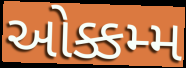
ઓક્કમ્મ